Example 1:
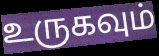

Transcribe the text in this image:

உருகவும்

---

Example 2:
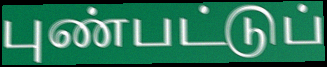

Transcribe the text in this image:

புண்பட்டுப்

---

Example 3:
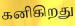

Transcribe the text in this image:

கனிகிறது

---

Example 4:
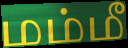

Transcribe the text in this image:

மம்மீ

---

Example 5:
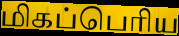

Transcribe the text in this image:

மிகப்பெரிய